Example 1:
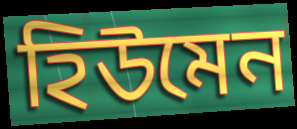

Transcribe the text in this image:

হিউমেন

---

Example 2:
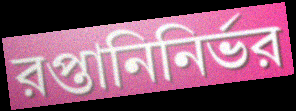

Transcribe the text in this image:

রপ্তানিনির্ভর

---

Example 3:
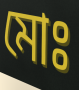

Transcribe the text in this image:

মোঃ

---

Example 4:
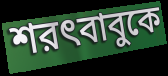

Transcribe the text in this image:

শরৎবাবুকে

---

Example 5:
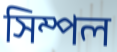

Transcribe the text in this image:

সিম্পল